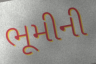
ભૂમીની